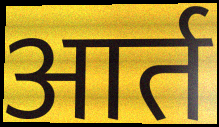
आर्त